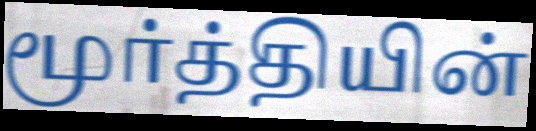
மூர்த்தியின்